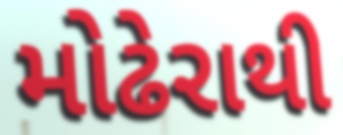
મોઢેરાથી